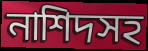
নাশিদসহ